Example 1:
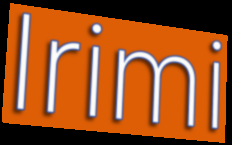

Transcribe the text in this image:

Irimi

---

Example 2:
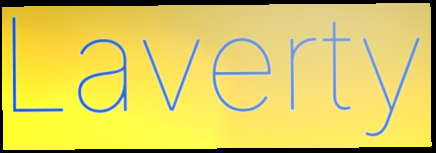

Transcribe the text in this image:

Laverty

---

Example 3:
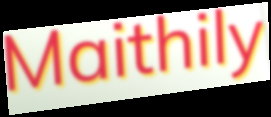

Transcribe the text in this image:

Maithily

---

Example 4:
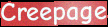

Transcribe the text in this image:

Creepage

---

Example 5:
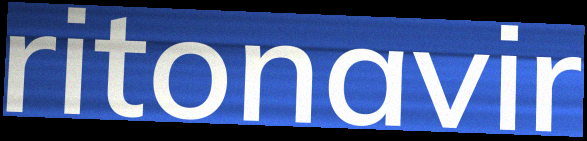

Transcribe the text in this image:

ritonavir